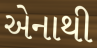
એનાથી